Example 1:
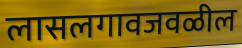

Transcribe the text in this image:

लासलगावजवळील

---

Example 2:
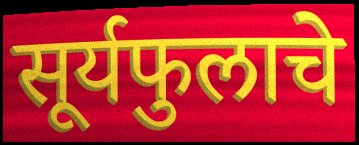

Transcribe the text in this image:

सूर्यफुलाचे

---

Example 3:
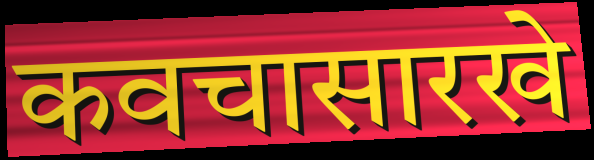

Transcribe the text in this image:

कवचासारखे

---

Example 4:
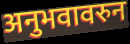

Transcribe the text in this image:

अनुभवावरुन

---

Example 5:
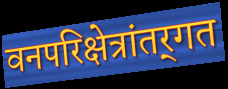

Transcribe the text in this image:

वनपरिक्षेत्रांतर्गत